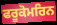
ਫਰੂਕੋਮਰਿਨ